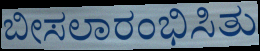
ಬೀಸಲಾರಂಭಿಸಿತು